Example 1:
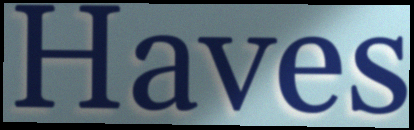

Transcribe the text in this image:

Haves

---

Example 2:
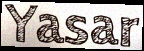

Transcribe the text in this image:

Yasar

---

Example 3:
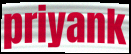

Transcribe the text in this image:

priyank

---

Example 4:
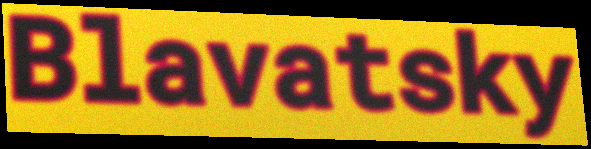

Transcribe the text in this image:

Blavatsky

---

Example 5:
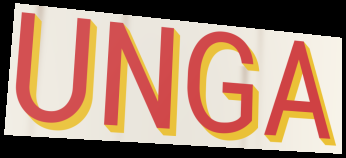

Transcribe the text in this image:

UNGA